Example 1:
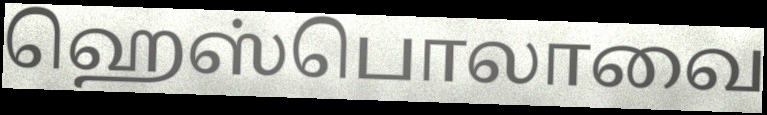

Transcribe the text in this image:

ஹெஸ்பொலாவை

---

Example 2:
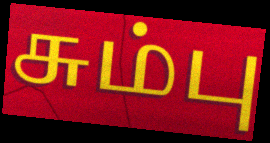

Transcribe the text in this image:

சும்பு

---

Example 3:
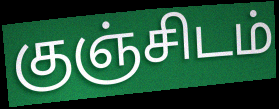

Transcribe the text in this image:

குஞ்சிடம்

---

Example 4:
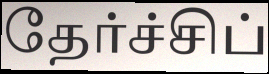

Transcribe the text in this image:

தேர்ச்சிப்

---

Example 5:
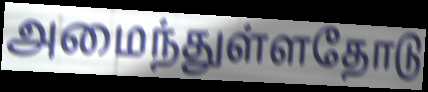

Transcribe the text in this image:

அமைந்துள்ளதோடு